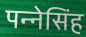
पन्नेसिंह